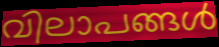
വിലാപങ്ങൾ